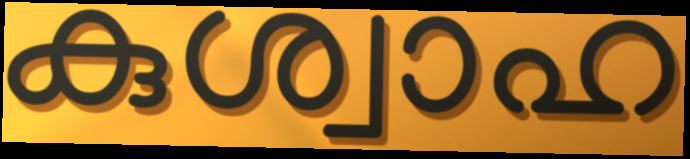
കുശ്വാഹ